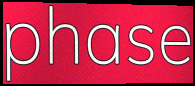
phase